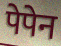
पेपेन